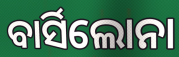
ବାର୍ସିଲୋନା